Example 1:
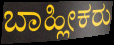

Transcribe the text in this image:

ಬಾಹ್ಲೀಕರು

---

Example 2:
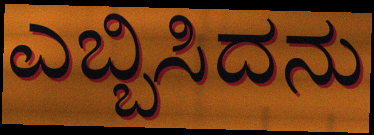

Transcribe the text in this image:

ಎಬ್ಬಿಸಿದನು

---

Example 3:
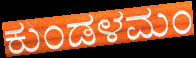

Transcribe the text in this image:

ಕುಂಡಳಮಂ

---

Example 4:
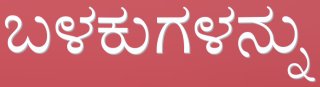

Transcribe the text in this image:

ಬಳಕುಗಳನ್ನು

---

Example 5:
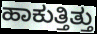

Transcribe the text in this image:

ಹಾಕುತ್ತಿತ್ತು